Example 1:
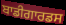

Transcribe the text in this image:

ਬਾਡੀਗਾਰਡਸ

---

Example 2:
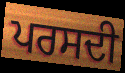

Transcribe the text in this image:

ਪਰਸਦੀ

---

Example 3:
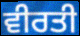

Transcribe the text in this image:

ਵੀਰਤੀ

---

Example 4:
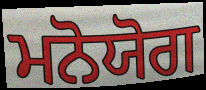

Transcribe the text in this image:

ਮਨੋਯੋਗ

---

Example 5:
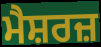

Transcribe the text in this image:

ਮੈਸ਼ਰਜ਼